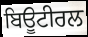
ਬਿਊਟੀਰਲ